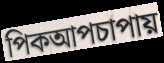
পিকআপচাপায়